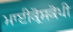
ਮਾਈਕ੍ਰੋਸਕੋਪੀ